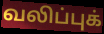
வலிப்புக்